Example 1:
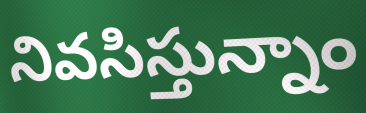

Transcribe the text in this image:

నివసిస్తున్నాం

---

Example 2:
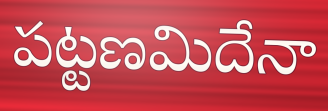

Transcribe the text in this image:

పట్టణమిదేనా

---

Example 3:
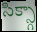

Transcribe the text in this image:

సిక్స్గా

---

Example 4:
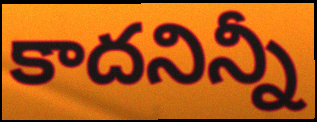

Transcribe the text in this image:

కాదనిన్నీ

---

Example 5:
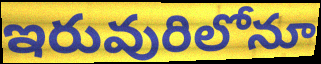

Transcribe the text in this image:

ఇరువురిలోనూ